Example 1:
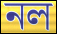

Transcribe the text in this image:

নল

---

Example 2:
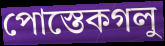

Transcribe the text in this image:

পোস্তেকগলু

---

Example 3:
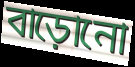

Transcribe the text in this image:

বাড়োনো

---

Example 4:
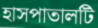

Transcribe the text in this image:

হাসপাতালটি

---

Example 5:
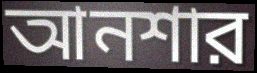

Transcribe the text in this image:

আনশার